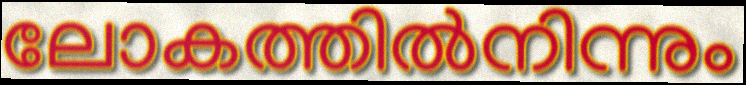
ലോകത്തിൽനിന്നും